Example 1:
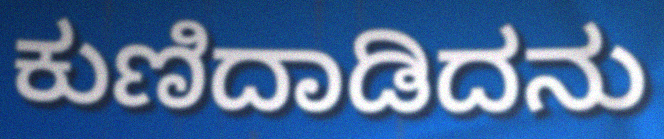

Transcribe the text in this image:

ಕುಣಿದಾಡಿದನು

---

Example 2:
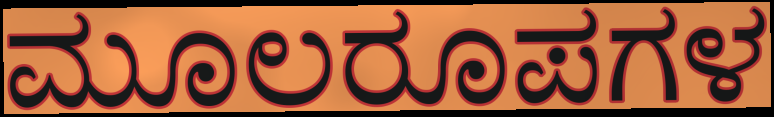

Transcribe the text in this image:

ಮೂಲರೂಪಗಳ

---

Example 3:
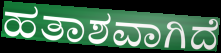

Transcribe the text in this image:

ಹತಾಶವಾಗಿದೆ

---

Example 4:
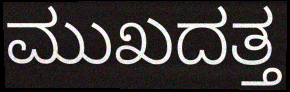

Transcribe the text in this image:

ಮುಖದತ್ತ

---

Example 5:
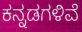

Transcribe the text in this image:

ಕನ್ನಡಗಳಿವೆ